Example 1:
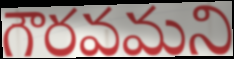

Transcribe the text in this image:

గౌరవమని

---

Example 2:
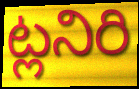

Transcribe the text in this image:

ట్లనిరి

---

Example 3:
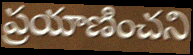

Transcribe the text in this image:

ప్రయాణించని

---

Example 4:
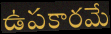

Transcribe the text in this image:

ఉపకారమే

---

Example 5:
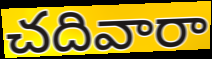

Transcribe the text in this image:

చదివారా